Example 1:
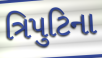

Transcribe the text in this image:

ત્રિપુટિના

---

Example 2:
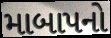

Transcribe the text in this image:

માબાપનો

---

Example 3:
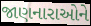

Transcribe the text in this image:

જાણનારાઓને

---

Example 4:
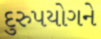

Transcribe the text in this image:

દુરુપયોગને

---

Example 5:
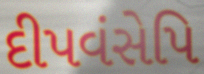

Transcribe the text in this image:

દીપવંસેપિ